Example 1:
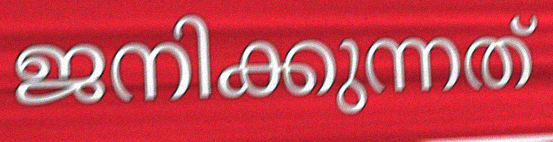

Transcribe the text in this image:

ജനിക്കുന്നത്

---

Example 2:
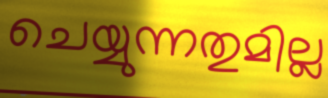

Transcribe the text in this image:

ചെയ്യുന്നതുമില്ല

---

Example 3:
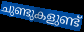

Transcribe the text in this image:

ചുണ്ടുകളുണ്ട്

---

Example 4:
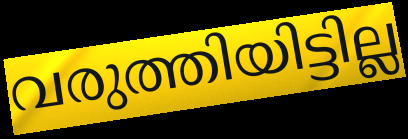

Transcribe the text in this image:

വരുത്തിയിട്ടില്ല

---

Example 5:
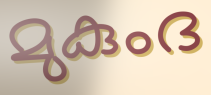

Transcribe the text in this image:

മുകുംദ